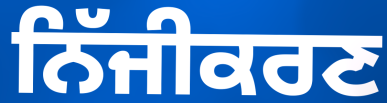
ਨਿੱਜੀਕਰਣ